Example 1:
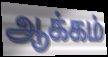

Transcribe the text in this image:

ஆக்கம்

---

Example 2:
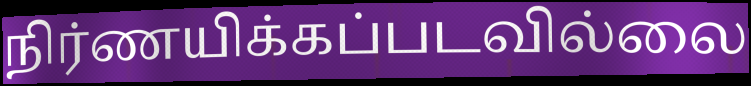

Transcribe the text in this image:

நிர்ணயிக்கப்படவில்லை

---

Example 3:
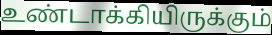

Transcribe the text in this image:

உண்டாக்கியிருக்கும்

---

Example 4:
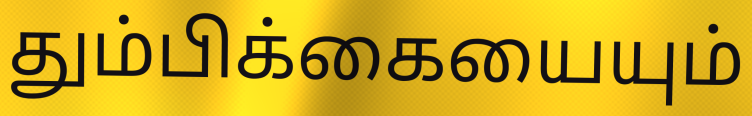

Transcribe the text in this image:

தும்பிக்கையையும்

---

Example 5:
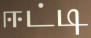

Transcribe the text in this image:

ஈட்டி